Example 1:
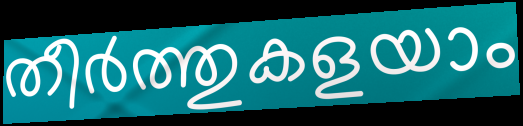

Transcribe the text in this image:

തീർത്തുകളയാം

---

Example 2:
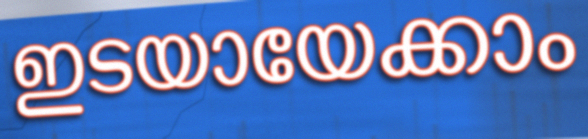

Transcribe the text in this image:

ഇടയായേക്കാം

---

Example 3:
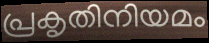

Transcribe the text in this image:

പ്രകൃതിനിയമം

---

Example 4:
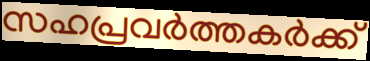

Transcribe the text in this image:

സഹപ്രവർത്തകർക്ക്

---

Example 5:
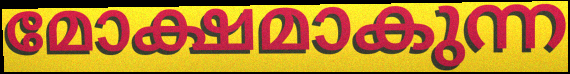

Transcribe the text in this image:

മോക്ഷമാകുന്ന